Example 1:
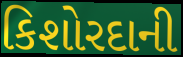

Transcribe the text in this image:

કિશોરદાની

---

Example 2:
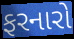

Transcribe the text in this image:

ફરનારો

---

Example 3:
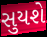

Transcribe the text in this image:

સુયશે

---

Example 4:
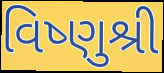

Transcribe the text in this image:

વિષ્ણુશ્રી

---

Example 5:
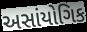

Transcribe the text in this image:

અસાંયોગિક